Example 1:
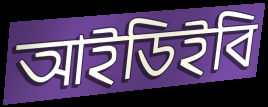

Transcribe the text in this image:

আইডিইবি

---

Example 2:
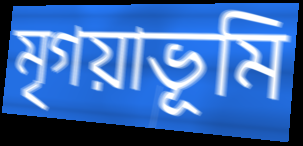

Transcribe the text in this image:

মৃগয়াভূমি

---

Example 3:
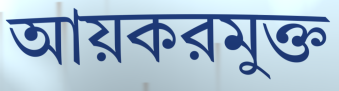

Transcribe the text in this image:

আয়করমুক্ত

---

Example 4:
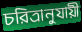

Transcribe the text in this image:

চরিত্রানুযায়ী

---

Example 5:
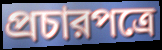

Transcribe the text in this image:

প্রচারপত্রে